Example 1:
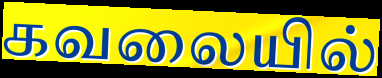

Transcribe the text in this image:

கவலையில்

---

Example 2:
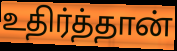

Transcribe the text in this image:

உதிர்த்தான்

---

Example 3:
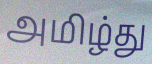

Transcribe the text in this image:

அமிழ்து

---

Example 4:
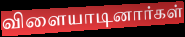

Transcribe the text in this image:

விளையாடினார்கள்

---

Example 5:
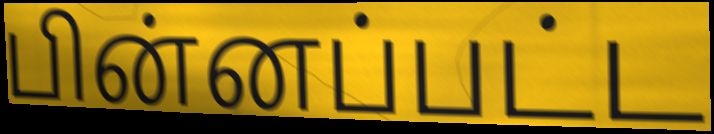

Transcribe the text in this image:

பின்னப்பட்ட